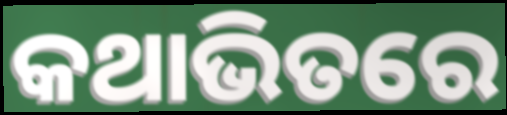
କଥାଭିତରେ